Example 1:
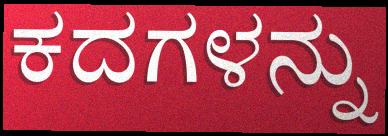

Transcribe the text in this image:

ಕದಗಳನ್ನು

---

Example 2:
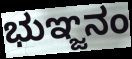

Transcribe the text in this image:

ಭುಞ್ಜನಂ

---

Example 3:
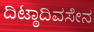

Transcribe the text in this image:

ದಿಟ್ಠಾದಿವಸೇನ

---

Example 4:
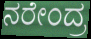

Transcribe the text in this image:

ನರೇಂದ್ರ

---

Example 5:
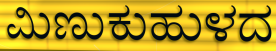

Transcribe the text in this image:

ಮಿಣುಕುಹುಳದ